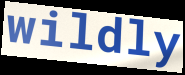
wildly